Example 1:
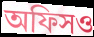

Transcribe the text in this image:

অফিসও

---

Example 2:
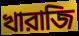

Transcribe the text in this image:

খারাজি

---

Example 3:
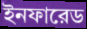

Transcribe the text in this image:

ইনফারেড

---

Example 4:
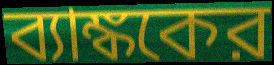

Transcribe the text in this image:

ব্যাঙ্ককের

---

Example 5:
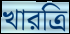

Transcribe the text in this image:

খারত্রি